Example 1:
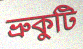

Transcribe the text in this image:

ভ্ৰুকুটি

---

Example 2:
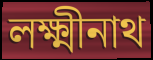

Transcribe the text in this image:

লক্ষ্মীনাথ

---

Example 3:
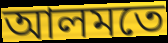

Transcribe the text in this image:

আলমতে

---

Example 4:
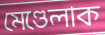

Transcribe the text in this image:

মেণ্ডেলাক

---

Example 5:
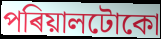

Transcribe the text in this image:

পৰিয়ালটোকো